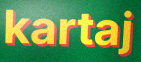
kartaj